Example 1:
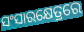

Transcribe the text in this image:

ସଂସାରକ୍ଷେତ୍ରରେ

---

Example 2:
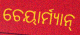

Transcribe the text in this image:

ଚେୟାର୍ମ୍ୟାନ୍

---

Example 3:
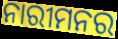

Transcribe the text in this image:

ନାରୀମନର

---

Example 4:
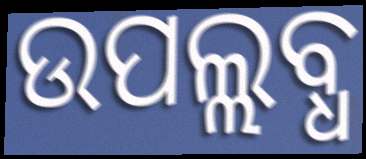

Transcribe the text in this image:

ଉପଲ୍ଲବ୍ଧ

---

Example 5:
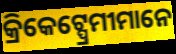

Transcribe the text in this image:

କ୍ରିକେଟ୍ପ୍ରେମୀମାନେ